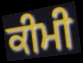
ਕੀਮੀ